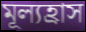
মূল্যহ্রাস